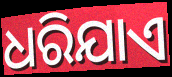
ଧରିଯାଏ